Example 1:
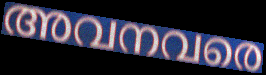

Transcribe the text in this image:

അവനവരെ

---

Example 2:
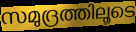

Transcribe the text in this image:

സമുദ്രത്തിലൂടെ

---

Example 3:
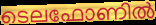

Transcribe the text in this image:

ടെലഫോണിൽ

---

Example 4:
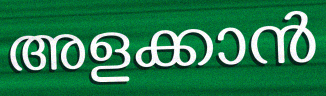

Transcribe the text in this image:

അളക്കാൻ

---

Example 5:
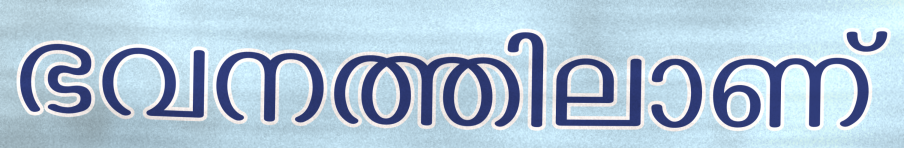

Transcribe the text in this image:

ഭവനത്തിലാണ്